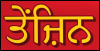
ਤੇਂਜ਼ਿਨ